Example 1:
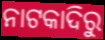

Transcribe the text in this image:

ନାଟକାଦିରୁ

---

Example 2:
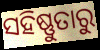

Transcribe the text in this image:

ସହିଷ୍ଣୁତାରୁ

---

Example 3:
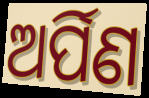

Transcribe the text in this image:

ଅର୍ପିଣ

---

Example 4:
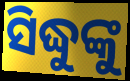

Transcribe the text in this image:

ସିଦ୍ଧୁଙ୍କୁ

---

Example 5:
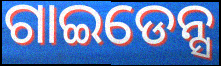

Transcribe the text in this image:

ଗାଇଡେନ୍ସ